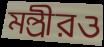
মন্ত্রীরও